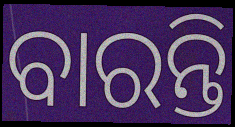
ବାରନ୍ତି